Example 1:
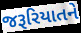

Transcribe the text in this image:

જરૂરિયાતને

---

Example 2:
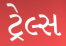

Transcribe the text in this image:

ટ્રેલ્સ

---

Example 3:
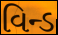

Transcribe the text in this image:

વિન્ડ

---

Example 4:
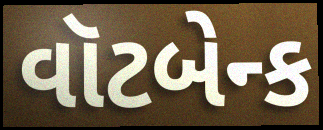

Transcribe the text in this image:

વૉટબેન્ક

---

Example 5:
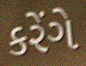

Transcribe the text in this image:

કરેંગે